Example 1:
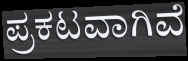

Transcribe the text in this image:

ಪ್ರಕಟವಾಗಿವೆ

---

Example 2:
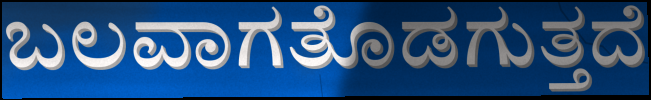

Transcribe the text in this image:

ಬಲವಾಗತೊಡಗುತ್ತದೆ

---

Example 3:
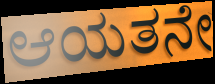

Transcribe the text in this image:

ಆಯತನೇ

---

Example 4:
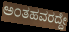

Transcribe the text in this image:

ಅಂತಹವರದ್ದೇ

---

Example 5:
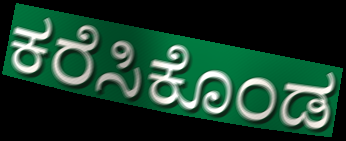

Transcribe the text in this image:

ಕರೆಸಿಕೊಂಡ